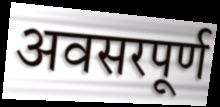
अवसरपूर्ण